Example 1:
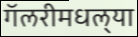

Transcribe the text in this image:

गॅलरीमधल्या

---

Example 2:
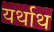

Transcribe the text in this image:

यर्थाथ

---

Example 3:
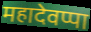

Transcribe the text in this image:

महादेवप्पा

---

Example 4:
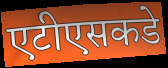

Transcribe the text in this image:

एटीएसकडे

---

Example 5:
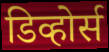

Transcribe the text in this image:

डिव्होर्स